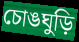
চোঙঘুড়ি